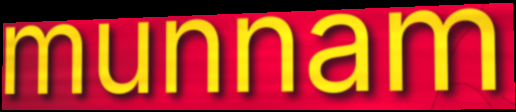
munnam